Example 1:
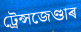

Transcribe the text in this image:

ট্ৰেন্সজেণ্ডাৰ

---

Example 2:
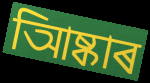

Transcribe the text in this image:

আিষ্কাৰ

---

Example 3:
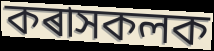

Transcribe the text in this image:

কৰাসকলক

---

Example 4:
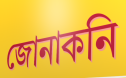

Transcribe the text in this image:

জোনাকনি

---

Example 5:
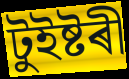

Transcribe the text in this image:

টুইষ্টৰী